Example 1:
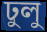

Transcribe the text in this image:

ঢুলু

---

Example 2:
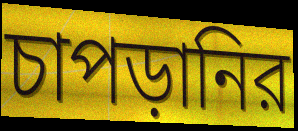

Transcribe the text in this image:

চাপড়ানির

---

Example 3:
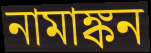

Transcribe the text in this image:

নামাঙ্কন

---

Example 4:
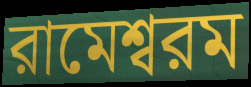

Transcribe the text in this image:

রামেশ্বরম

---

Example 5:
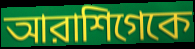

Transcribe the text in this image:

আরাশিগেকে